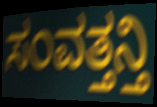
ಸಂವತ್ತನ್ತಿ